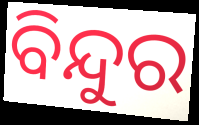
ବିନ୍ଦୁର